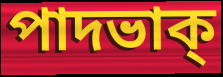
পাদভাক্